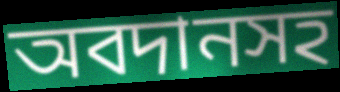
অবদানসহ